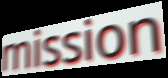
mission